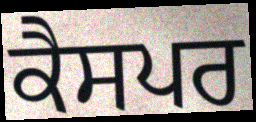
ਕੈਸਪਰ